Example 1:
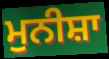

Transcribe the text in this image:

ਮੁਨੀਸ਼ਾ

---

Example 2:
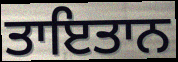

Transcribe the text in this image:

ਤਾਇਤਾਨ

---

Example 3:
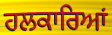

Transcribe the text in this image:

ਹਲਕਾਰਿਆਂ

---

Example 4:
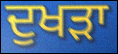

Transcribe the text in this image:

ਦੁਖੜਾ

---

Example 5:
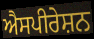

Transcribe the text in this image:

ਐਸਪੀਰੇਸ਼ਨ